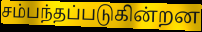
சம்பந்தப்படுகின்றன